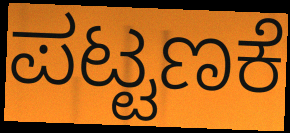
ಪಟ್ಟಣಕೆ